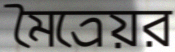
মৈত্রেয়র